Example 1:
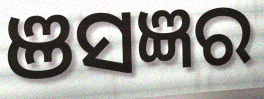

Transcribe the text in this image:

ଞସଜ୍ଞର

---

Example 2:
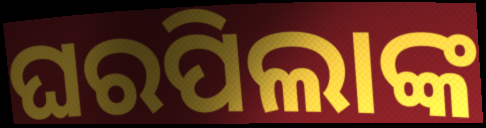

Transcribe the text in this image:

ଘରପିଲାଙ୍କ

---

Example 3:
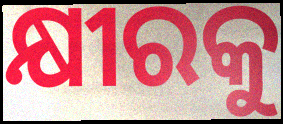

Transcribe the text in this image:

କ୍ଷୀରକୁ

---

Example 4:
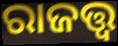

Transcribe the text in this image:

ରାଜତ୍ତ୍ୱ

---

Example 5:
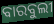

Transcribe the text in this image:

ବାରବୁଲୀ